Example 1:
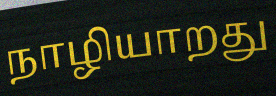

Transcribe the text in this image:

நாழியாறது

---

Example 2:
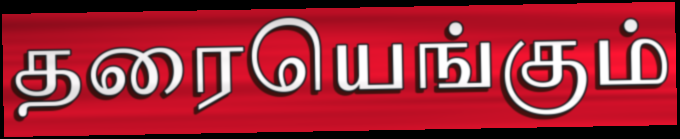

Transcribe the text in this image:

தரையெங்கும்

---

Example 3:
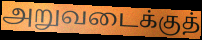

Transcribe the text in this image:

அறுவடைக்குத்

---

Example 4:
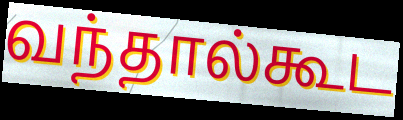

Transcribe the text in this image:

வந்தால்கூட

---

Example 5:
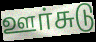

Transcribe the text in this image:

ஊர்சுடு